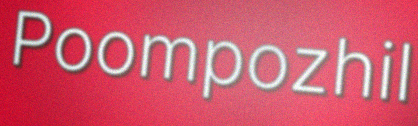
Poompozhil